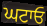
ਘਟਾਓ